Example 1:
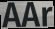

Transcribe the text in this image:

AAr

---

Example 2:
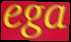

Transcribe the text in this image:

ega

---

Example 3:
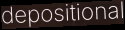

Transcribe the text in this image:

depositional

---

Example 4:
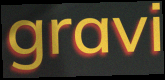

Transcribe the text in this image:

gravi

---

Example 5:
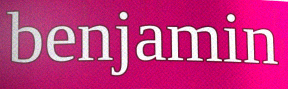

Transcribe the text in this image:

benjamin